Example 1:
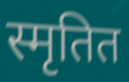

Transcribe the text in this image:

स्मृतित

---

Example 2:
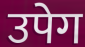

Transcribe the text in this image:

उपेग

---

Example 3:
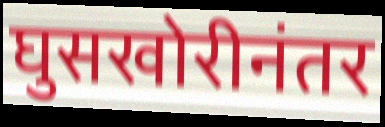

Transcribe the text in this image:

घुसखोरीनंतर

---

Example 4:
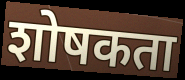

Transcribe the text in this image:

शोषकता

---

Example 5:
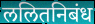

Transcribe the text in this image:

ललितनिबंध